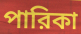
পারিকা